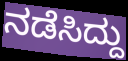
ನಡೆಸಿದ್ದು